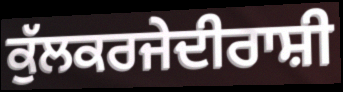
ਕੁੱਲਕਰਜੇਦੀਰਾਸ਼ੀ